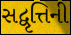
સદ્વૃત્તિની